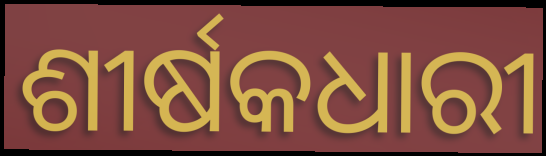
ଶୀର୍ଷକଧାରୀ